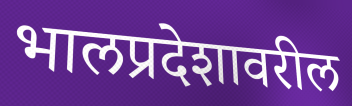
भालप्रदेशावरील